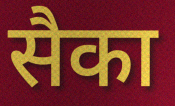
सैका